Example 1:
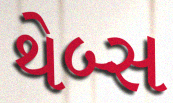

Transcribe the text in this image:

થેબ્સ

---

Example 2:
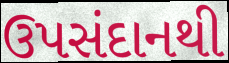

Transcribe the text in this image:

ઉપસંદાનથી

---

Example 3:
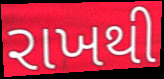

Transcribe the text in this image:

રાખથી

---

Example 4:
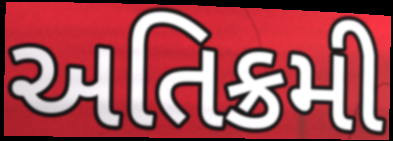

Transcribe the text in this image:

અતિક્રમી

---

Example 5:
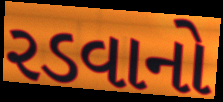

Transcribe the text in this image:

રડવાનો